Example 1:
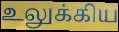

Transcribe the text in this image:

உலுக்கிய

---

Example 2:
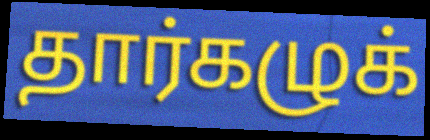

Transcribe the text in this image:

தார்கழுக்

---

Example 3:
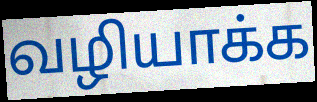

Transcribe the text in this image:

வழியாக்க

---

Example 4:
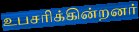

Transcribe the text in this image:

உபசரிக்கின்றனர்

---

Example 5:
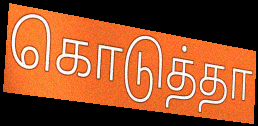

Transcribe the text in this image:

கொடுத்தா